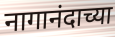
नागानंदाच्या